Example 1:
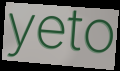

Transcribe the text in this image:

yeto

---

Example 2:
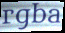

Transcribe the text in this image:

rgba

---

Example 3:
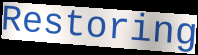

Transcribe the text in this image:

Restoring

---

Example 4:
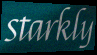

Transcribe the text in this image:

starkly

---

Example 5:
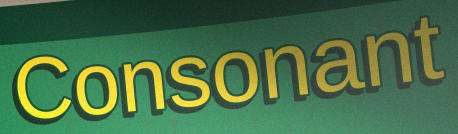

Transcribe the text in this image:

Consonant